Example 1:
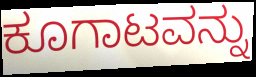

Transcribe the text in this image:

ಕೂಗಾಟವನ್ನು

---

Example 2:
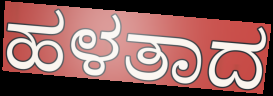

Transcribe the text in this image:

ಹಳತಾದ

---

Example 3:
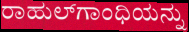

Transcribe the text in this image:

ರಾಹುಲ್‌ಗಾಂಧಿಯನ್ನು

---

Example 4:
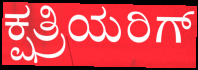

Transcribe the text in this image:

ಕ್ಷತ್ರಿಯರಿಗ್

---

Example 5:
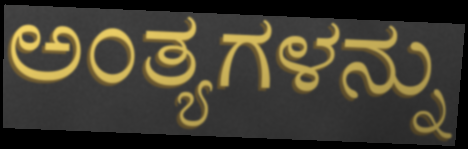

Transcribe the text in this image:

ಅಂತ್ಯಗಳನ್ನು